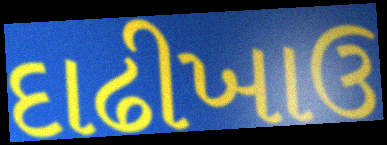
દાઢીખાઉ